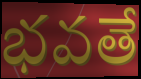
భవతే